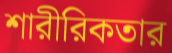
শারীরিকতার